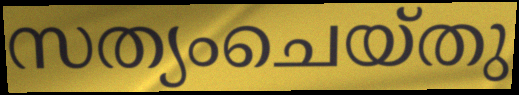
സത്യംചെയ്തു